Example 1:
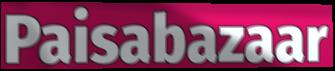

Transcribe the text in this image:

Paisabazaar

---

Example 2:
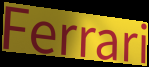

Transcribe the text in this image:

Ferrari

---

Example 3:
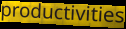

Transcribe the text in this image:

productivities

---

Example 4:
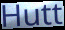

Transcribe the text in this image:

Hutt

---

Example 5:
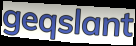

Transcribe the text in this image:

geqslant